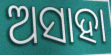
ଅସାହା